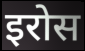
इरोस